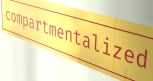
compartmentalized